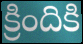
క్రిందికి